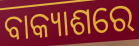
ବାକ୍ୟାଶରେ